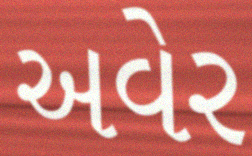
અવેર